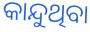
କାନ୍ଦୁଥିବା